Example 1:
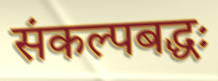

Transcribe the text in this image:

संकल्पबद्धः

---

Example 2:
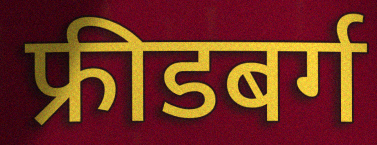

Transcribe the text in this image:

फ्रीडबर्ग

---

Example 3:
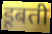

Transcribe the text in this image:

डूबती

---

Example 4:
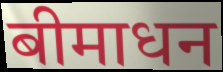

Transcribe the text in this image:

बीमाधन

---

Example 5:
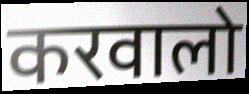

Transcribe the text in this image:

करवालो